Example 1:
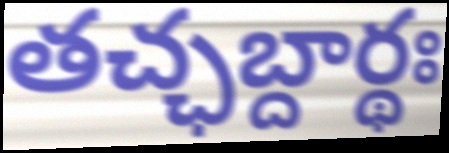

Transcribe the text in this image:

తచ్ఛబ్దార్థః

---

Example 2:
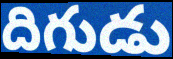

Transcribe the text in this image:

దిగుడు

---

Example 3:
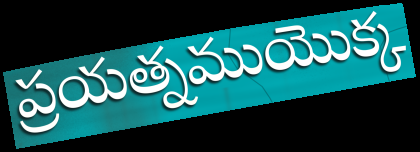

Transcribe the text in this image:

ప్రయత్నముయొక్క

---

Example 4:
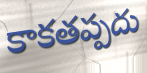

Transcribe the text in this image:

కాకతప్పదు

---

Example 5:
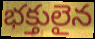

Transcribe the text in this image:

భక్తులైన